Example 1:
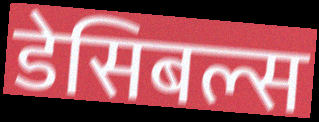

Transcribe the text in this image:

डेसिबल्स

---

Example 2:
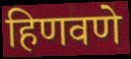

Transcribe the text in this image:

हिणवणे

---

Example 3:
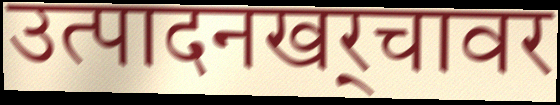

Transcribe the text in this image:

उत्पादनखर्चावर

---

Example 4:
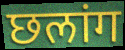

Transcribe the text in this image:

छलांग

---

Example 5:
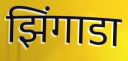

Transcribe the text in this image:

झिंगाडा